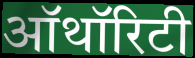
ऑथॉरिटी